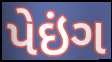
પેઇંગ